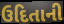
ઉદિતાની